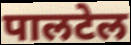
पालटेल